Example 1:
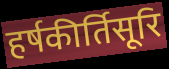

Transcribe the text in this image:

हर्षकीर्तिसूरि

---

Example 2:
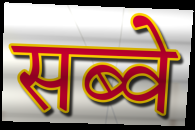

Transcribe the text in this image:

सब्वे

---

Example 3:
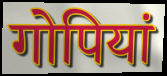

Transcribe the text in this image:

गोपियां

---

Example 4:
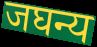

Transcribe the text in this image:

जघन्य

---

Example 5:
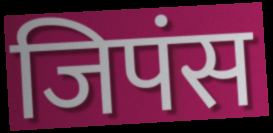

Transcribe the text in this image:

जिपंस